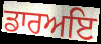
ਡਾਰਅਇ